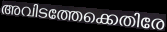
അവിടത്തേക്കെതിരേ